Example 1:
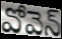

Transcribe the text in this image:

వోవెన్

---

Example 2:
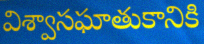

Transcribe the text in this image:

విశ్వాసఘాతుకానికి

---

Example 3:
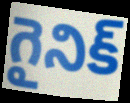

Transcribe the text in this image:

గైనిక్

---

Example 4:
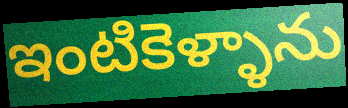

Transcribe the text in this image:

ఇంటికెళ్ళాను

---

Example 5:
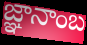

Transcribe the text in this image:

జ్ఞానాంబ